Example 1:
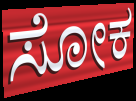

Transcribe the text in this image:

ಸೋಕ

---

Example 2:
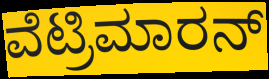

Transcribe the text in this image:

ವೆಟ್ರಿಮಾರನ್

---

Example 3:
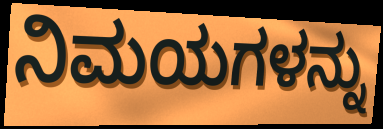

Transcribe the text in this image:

ನಿಮಯಗಳನ್ನು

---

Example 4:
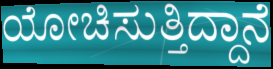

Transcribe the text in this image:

ಯೋಚಿಸುತ್ತಿದ್ದಾನೆ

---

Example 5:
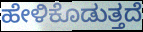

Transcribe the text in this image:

ಹೇಳಿಕೊಡುತ್ತದೆ